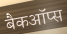
बैकऑप्स